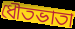
ধৌতভাতা